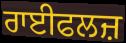
ਰਾਈਫਲਜ਼